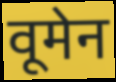
वूमेन